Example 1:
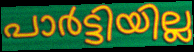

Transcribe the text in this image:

പാർട്ടിയില്ല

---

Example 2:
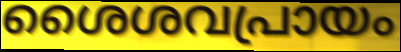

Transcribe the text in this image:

ശൈശവപ്രായം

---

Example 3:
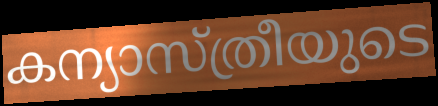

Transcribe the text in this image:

കന്യാസ്ത്രീയുടെ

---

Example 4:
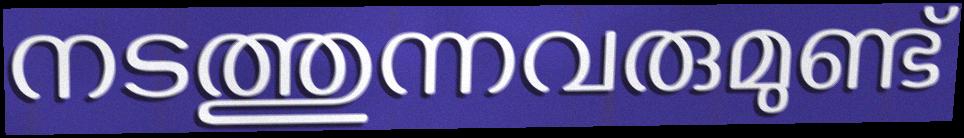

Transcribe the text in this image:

നടത്തുന്നവരുമുണ്ട്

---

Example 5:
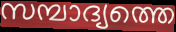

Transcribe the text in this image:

സമ്പാദ്യത്തെ